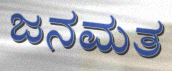
ಜನಮತ